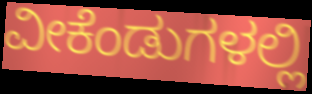
ವೀಕೆಂಡುಗಳಲ್ಲಿ